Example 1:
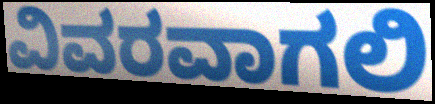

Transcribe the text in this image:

ವಿವರವಾಗಲಿ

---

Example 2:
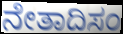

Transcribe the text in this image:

ನೇತಾದಿಸಂ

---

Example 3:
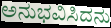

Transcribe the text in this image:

ಅನುಭವಿಸಿದನು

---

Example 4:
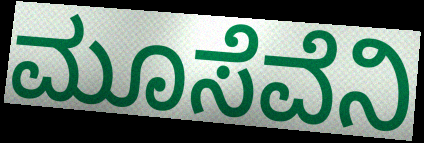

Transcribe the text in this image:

ಮೂಸೆವೆನಿ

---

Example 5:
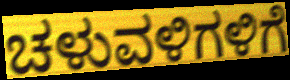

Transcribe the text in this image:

ಚಳುವಳಿಗಳಿಗೆ